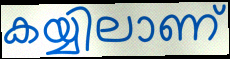
കയ്യിലാണ്